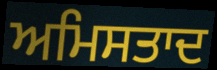
ਅਮਿਸਤਾਦ